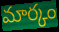
మార్కం